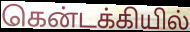
கென்டக்கியில்